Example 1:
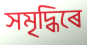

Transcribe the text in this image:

সমৃদ্ধিৰে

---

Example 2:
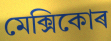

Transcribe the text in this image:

মেক্সিকোৰ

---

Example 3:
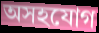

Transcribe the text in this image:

অসহযোগ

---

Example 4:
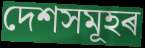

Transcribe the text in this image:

দেশসমূহৰ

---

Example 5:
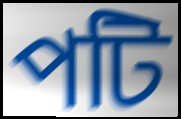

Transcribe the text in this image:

পটি